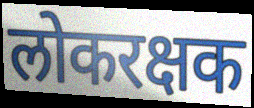
लोकरक्षक